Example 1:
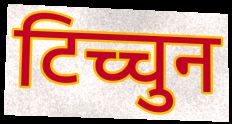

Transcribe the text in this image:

टिच्चुन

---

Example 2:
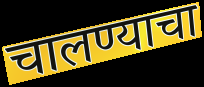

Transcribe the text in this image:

चालण्याचा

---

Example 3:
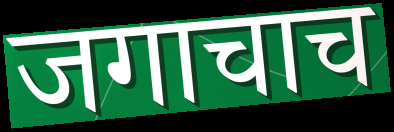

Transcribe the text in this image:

जगाचाच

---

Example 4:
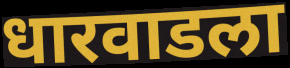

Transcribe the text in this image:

धारवाडला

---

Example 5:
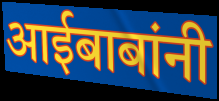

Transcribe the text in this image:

आईबाबांनी